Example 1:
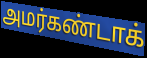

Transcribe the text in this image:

அமர்கண்டாக்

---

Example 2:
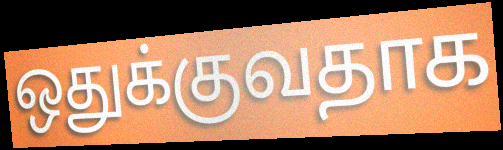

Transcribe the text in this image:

ஒதுக்குவதாக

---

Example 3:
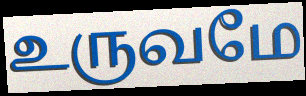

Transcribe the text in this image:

உருவமே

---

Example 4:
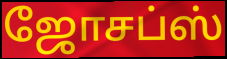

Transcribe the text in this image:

ஜோசப்ஸ்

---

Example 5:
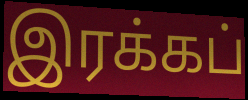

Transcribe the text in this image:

இரக்கப்